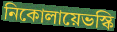
নিকোলায়েভস্কি